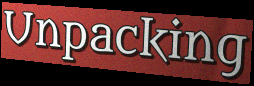
Unpacking